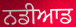
ਨਡੀਆਡ